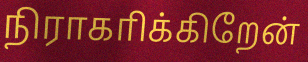
நிராகரிக்கிறேன்